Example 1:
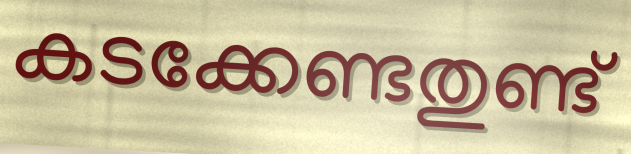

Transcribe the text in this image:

കടക്കേണ്ടതുണ്ട്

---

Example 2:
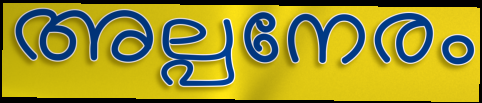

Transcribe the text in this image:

അല്പനേരം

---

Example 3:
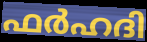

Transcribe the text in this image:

ഫർഹദി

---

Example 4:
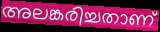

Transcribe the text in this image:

അലങ്കരിച്ചതാണ്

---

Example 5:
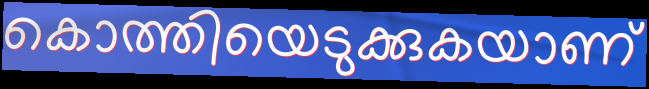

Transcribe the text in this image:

കൊത്തിയെടുക്കുകയാണ്